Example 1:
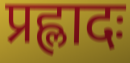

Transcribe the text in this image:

प्रह्लादः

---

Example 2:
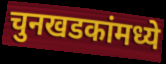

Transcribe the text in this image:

चुनखडकांमध्ये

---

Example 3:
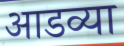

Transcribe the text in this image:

आडव्या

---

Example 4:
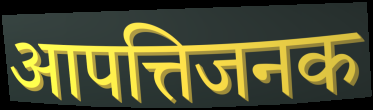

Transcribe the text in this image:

आपत्तिजनक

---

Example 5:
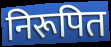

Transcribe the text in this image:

निरूपित